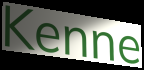
Kenne